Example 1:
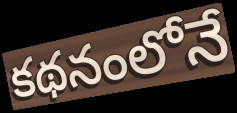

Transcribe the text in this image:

కథనంలోనే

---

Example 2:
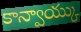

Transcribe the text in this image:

కాన్వాయ్కు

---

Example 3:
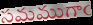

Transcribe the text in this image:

సమముగాఁ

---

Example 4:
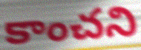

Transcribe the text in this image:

కాంచని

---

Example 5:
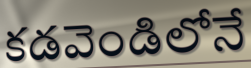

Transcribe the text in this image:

కడవెండిలోనే